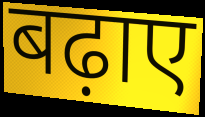
बढ़ाए